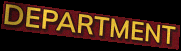
DEPARTMENT